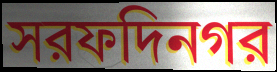
সরফদিনগর